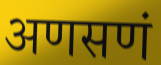
अणसणं